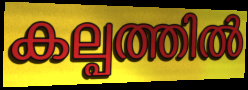
കല്പത്തിൽ